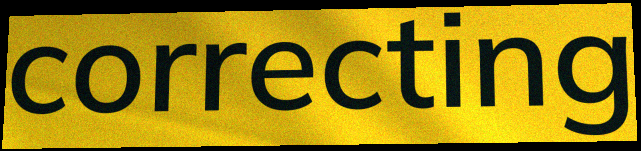
correcting